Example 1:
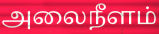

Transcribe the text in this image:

அலைநீளம்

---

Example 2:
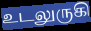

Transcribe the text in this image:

உடலுருகி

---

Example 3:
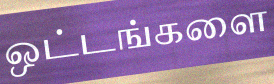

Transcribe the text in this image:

ஒட்டங்களை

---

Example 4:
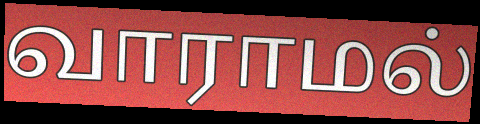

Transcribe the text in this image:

வாராமல்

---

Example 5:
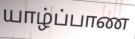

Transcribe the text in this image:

யாழ்ப்பாண